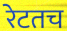
रेटतच